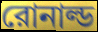
রোনাল্ড